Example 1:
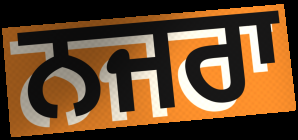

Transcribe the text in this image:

ਨਜਰਾ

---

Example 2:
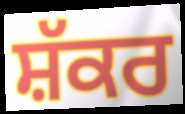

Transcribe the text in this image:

ਸ਼ੱਕਰ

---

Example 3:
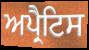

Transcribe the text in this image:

ਅਪ੍ਰੈਟਿਸ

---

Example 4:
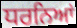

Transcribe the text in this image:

ਧਰਨਿਆਂ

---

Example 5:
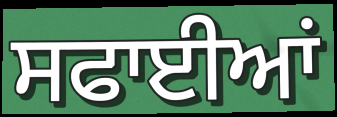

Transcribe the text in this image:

ਸਫਾਈਆਂ